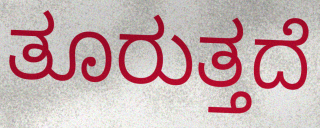
ತೂರುತ್ತದೆ